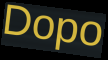
Dopo